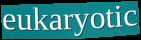
eukaryotic